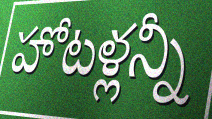
హోటళ్లన్నీ